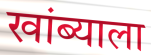
खांब्याला